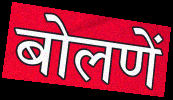
बोलणें